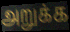
அறுக்க